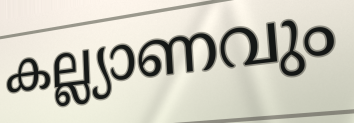
കല്ല്യാണവും